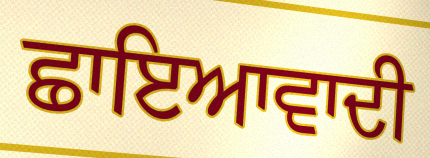
ਛਾਇਆਵਾਦੀ